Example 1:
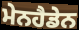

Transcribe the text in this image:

ਮੇਨਹੈਡੇਨ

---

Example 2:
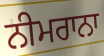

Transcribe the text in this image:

ਨੀਮਰਾਨਾ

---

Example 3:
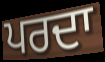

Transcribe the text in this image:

ਪਰਦਾ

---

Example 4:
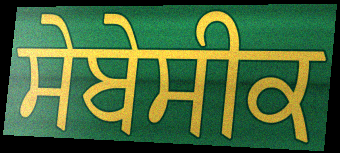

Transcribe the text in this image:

ਸੇਬੇਸੀਕ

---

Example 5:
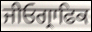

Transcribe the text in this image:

ਜੀਓਗ੍ਰਾਫਿਕ